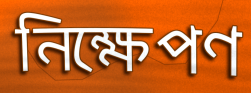
নিক্ষেপণ